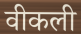
वीकली